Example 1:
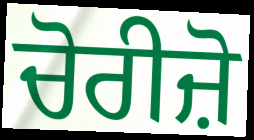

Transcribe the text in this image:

ਚੋਰੀਜ਼ੋ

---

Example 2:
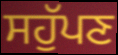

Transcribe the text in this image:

ਸਹੁੱਪਣ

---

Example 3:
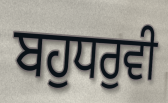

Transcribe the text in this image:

ਬਹੁਧਰੁਵੀ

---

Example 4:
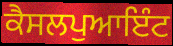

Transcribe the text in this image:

ਕੈਸਲਪੁਆਇੰਟ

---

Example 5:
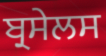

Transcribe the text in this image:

ਬ੍ਰਸੇਲਸ